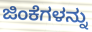
ಜಿಂಕೆಗಳನ್ನು